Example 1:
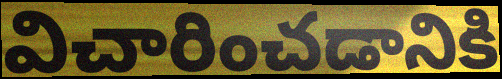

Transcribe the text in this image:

విచారించడానికి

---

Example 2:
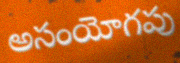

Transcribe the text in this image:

అసంయోగపు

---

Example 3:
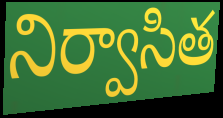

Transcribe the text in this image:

నిర్వాసిత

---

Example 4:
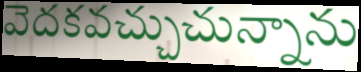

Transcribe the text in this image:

వెదకవచ్చుచున్నాను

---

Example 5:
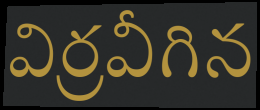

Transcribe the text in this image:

విర్రవీగిన